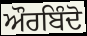
ਔਰਬਿੰਦੋ